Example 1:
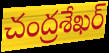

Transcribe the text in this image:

చంద్రశేఖర్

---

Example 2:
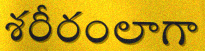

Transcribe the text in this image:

శరీరంలాగా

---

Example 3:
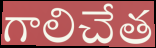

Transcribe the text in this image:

గాలిచేత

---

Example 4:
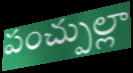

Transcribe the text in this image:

పంచ్పుల్లా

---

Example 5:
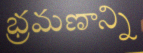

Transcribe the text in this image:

భ్రమణాన్ని